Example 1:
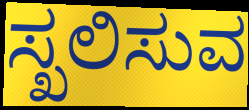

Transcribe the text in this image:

ಸ್ಖಲಿಸುವ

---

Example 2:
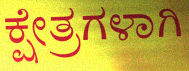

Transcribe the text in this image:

ಕ್ಷೇತ್ರಗಳಾಗಿ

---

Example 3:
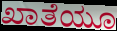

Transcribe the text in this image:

ಖಾತೆಯೂ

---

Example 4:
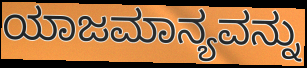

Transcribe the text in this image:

ಯಾಜಮಾನ್ಯವನ್ನು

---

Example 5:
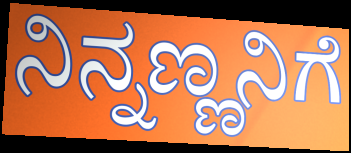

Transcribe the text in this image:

ನಿನ್ನಣ್ಣನಿಗೆ